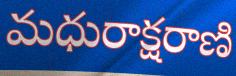
మధురాక్షరాణి